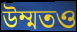
উম্মতও